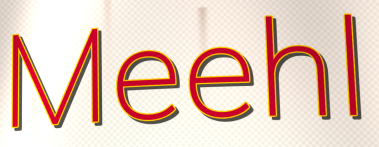
Meehl